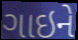
ગાઇને